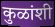
कुळांशी